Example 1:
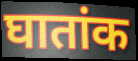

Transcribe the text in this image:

घातांक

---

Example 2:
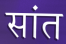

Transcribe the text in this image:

सांत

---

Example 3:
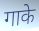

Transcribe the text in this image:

गाके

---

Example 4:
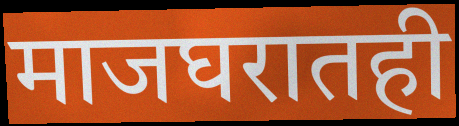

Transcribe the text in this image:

माजघरातही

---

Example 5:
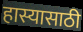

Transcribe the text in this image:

हास्यासाठी